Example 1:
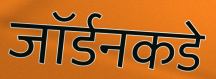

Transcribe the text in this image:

जॉर्डनकडे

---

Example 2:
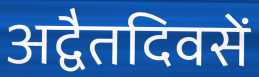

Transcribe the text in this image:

अद्वैतदिवसें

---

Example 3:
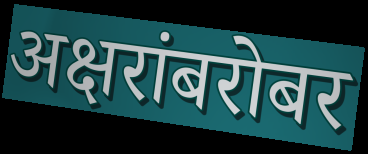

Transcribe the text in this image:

अक्षरांबरोबर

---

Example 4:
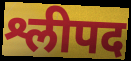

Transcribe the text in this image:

श्लीपद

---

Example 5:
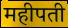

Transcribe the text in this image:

महीपती